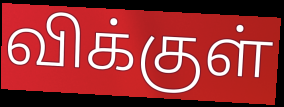
விக்குள்